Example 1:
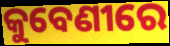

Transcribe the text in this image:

କୁବେଣୀରେ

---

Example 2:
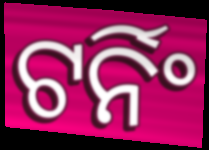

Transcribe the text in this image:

ଟର୍ନିଂ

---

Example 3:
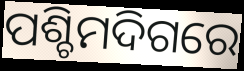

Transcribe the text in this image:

ପଶ୍ଚିମଦିଗରେ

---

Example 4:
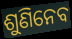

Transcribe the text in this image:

ଶୁଣିନେବ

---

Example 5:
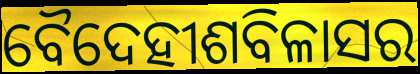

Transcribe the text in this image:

ବୈଦେହୀଶବିଳାସର